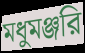
মধুমঞ্জরি